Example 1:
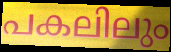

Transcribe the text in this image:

പകലിലും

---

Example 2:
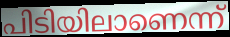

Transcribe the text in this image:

പിടിയിലാണെന്ന്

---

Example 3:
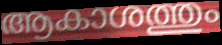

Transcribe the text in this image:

ആകാശത്തും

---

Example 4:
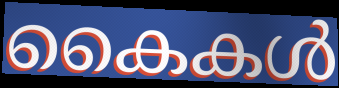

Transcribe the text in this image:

കൈകൾ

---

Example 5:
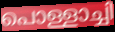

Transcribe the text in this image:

പൊള്ളാച്ചി